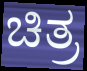
ಚಿತ್ರ